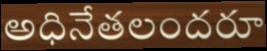
అధినేతలందరూ